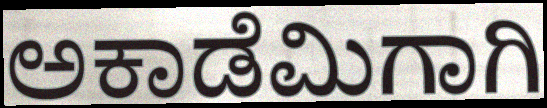
ಅಕಾಡೆಮಿಗಾಗಿ